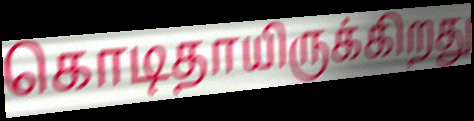
கொடிதாயிருக்கிறது